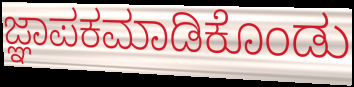
ಜ್ಞಾಪಕಮಾಡಿಕೊಂಡು